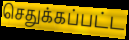
செதுக்கப்பட்ட